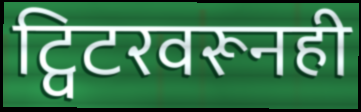
ट्विटरवरूनही